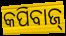
କପିବାଜ୍